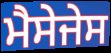
ਮੈਸੇਜੇਸ